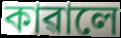
কাৱালে